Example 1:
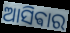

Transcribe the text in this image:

ଆସିଵାର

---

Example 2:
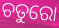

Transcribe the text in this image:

ଚତୁରୋ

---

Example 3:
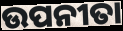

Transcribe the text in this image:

ଉପନୀତା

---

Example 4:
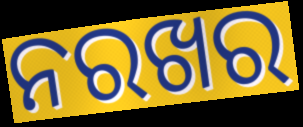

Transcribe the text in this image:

ନରଖର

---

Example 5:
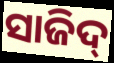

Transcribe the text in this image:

ସାଜିଦ୍